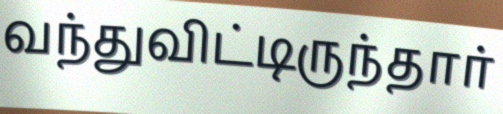
வந்துவிட்டிருந்தார்